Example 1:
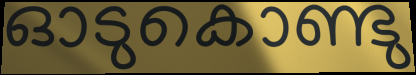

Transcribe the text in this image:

ഓടുകൊണ്ടു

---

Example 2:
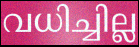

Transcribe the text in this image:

വധിച്ചില്ല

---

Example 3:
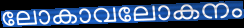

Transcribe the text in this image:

ലോകാവലോകനം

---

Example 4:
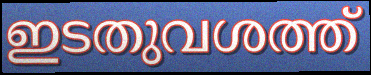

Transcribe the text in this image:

ഇടതുവശത്ത്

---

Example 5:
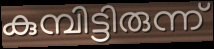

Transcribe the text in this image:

കുമ്പിട്ടിരുന്ന്